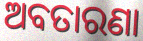
ଅବତାରଣା